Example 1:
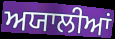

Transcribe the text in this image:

ਅਯਾਲੀਆਂ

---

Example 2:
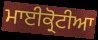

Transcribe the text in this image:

ਮਾਈਕ੍ਰੋਟੀਆ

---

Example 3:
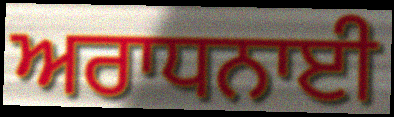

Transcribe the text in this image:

ਅਰਾਧਨਾਈ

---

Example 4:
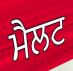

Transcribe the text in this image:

ਮੈਲਟ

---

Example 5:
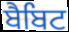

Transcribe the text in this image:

ਬੈਬਿਟ